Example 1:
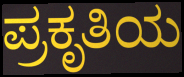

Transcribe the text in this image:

ಪ್ರಕೃತಿಯ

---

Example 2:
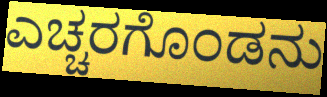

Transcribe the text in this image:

ಎಚ್ಚರಗೊಂಡನು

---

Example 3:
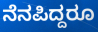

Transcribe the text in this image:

ನೆನಪಿದ್ದರೂ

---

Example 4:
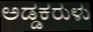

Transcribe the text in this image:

ಅಡ್ಡಕರುಳು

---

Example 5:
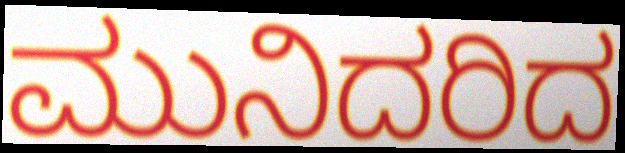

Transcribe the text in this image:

ಮುನಿದರಿದ